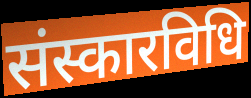
संस्कारविधि